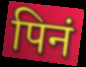
पिनं